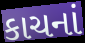
કાચનાં